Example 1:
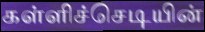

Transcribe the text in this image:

கள்ளிச்செடியின்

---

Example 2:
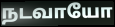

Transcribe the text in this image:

நடவாயோ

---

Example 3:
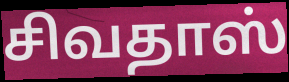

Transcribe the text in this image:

சிவதாஸ்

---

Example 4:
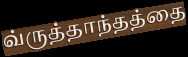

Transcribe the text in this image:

வ்ருத்தாந்தத்தை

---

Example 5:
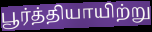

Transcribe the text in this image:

பூர்த்தியாயிற்று